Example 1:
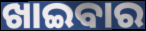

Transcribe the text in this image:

ଖାଇବାର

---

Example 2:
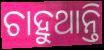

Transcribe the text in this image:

ଚାହୁଥାନ୍ତି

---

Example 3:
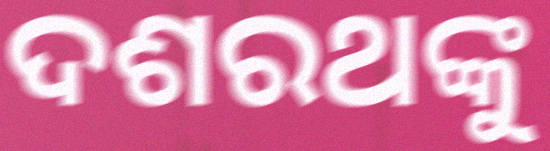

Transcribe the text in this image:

ଦଶରଥଙ୍କୁ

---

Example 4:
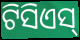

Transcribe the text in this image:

ଟିସିଏସ୍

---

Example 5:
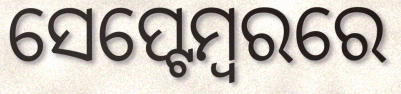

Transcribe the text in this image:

ସେପ୍ଟେମ୍ୱରରେ